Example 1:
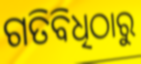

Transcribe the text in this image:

ଗତିବିଧିଠାରୁ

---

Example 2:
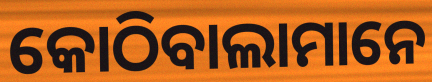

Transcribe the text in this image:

କୋଠିବାଲାମାନେ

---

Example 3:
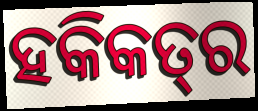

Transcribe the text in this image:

ହକିକତ୍‌ର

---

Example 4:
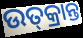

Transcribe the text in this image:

ଉତ୍‌କ୍ରାନ୍ତ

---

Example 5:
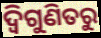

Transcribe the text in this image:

ଦ୍ୱିଗୁଣିତରୁ